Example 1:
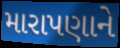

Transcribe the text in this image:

મારાપણાને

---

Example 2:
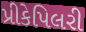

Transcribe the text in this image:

પ્રીકેપિલરી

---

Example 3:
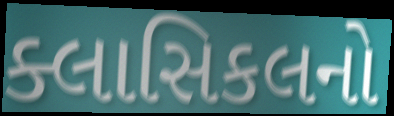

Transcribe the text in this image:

ક્લાસિકલનો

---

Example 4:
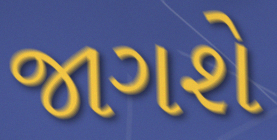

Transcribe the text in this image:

જાગશે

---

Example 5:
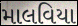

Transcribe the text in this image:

માલવિયા